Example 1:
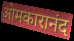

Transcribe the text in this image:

ओमकारानंद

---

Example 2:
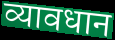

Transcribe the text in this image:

व्यावधान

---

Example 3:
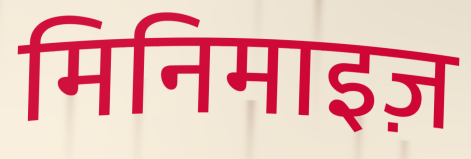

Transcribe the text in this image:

मिनिमाइज़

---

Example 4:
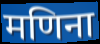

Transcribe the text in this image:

मणिना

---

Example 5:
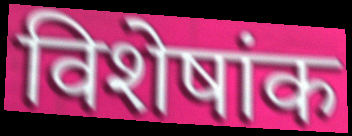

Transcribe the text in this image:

विशेषांक